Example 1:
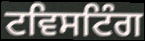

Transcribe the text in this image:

ਟਵਿਸਟਿੰਗ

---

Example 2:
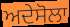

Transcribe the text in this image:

ਅਦੇਸੋਲਾ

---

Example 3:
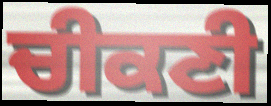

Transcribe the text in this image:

ਚੀਕਣੀ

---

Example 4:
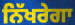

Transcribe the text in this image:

ਨਿੱਖਰੇਗਾ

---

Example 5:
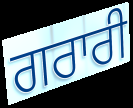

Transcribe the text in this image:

ਗਰਾਰੀ